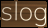
slog